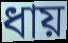
ধায়